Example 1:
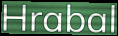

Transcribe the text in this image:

Hrabal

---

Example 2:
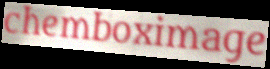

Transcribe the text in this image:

chemboximage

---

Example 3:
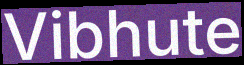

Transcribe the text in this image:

Vibhute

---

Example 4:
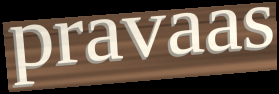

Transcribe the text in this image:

pravaas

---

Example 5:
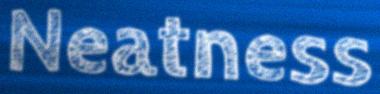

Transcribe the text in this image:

Neatness